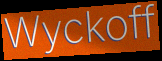
Wyckoff